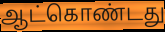
ஆட்கொண்டது